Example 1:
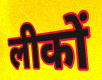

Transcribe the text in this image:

लीकों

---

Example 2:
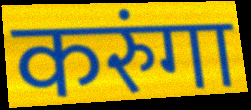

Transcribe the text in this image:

करुंगा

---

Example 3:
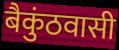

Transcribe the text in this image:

बैकुंठवासी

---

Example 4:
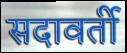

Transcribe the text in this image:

सदावर्ती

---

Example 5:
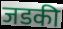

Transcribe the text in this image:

जडकी